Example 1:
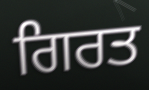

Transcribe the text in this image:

ਗਿਰਤ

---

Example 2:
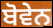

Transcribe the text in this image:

ਬੋਵੇਨ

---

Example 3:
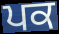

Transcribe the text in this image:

ਪਕ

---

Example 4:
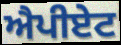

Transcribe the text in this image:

ਐਪੀਏਟ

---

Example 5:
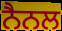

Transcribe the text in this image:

ਨੈਨਲ